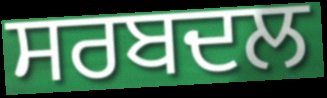
ਸਰਬਦਲ